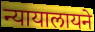
न्यायालायने